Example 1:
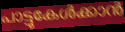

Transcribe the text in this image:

പാട്ടുകേൾക്കാൻ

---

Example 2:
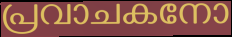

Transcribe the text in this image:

പ്രവാചകനോ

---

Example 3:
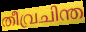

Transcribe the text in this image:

തീവ്രചിന്ത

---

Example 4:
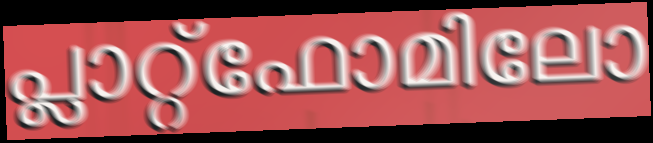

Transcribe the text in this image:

പ്ലാറ്റ്ഫോമിലോ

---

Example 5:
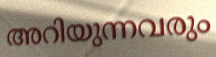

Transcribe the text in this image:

അറിയുന്നവരും